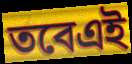
তবেএই